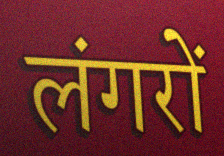
लंगरों